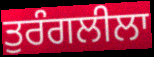
ਤੁਰੰਗਲੀਲਾ